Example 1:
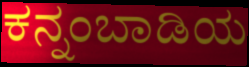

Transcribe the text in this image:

ಕನ್ನಂಬಾಡಿಯ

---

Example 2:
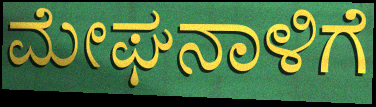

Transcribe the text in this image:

ಮೇಘನಾಳಿಗೆ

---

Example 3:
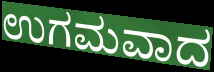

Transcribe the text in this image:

ಉಗಮವಾದ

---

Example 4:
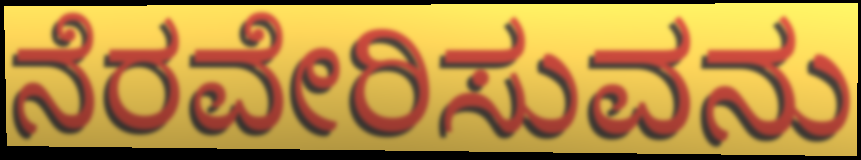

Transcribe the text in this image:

ನೆರವೇರಿಸುವನು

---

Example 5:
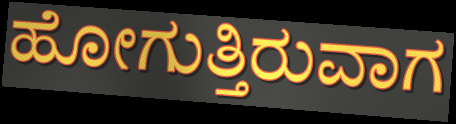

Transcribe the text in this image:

ಹೋಗುತ್ತಿರುವಾಗ